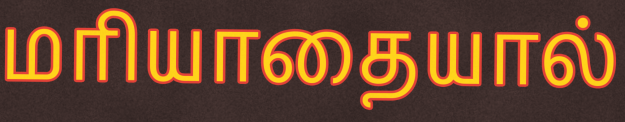
மரியாதையால்